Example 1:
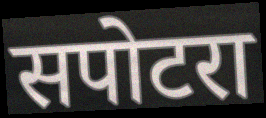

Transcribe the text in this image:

सपोटरा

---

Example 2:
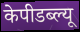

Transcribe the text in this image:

केपीडब्ल्यू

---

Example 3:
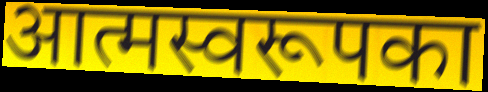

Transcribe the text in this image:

आत्मस्वरूपका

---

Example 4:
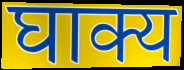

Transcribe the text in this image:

घाक्य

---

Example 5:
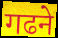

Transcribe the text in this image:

गढने